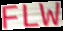
FLW